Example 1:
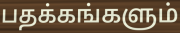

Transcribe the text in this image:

பதக்கங்களும்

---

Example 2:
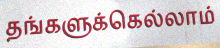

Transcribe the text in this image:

தங்களுக்கெல்லாம்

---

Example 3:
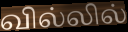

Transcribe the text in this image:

வில்லில்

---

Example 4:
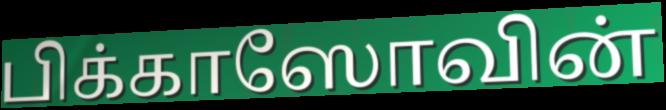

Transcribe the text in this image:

பிக்காஸோவின்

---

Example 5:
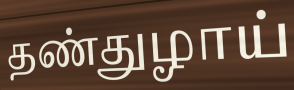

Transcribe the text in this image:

தண்துழாய்